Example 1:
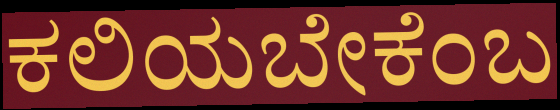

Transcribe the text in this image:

ಕಲಿಯಬೇಕೆಂಬ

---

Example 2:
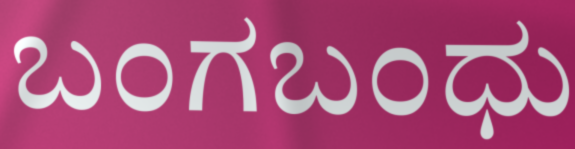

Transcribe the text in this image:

ಬಂಗಬಂಧು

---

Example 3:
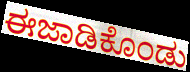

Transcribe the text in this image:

ಈಜಾಡಿಕೊಂಡು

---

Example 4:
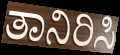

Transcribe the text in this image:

ತಾನಿರಿಸಿ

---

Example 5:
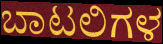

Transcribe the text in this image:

ಬಾಟಲಿಗಳ